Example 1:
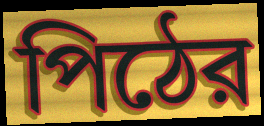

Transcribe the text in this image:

পিঠের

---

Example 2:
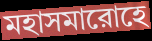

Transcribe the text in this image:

মহাসমারোহে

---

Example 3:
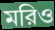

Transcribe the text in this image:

মরিও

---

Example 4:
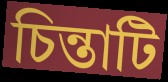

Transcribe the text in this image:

চিন্তাটি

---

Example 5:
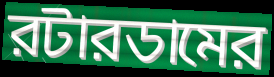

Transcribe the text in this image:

রটারডামের